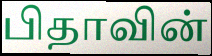
பிதாவின்